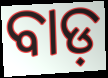
ବାଡ଼